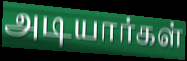
அடியார்கள்